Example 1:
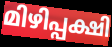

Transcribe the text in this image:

മിഴിപ്പക്ഷി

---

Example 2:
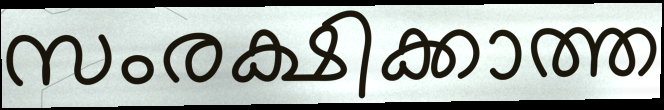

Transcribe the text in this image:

സംരക്ഷിക്കാത്ത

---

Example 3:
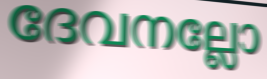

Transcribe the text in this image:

ദേവനല്ലോ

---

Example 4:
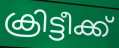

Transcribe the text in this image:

ക്രിട്ടീക്ക്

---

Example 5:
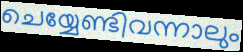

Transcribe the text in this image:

ചെയ്യേണ്ടിവന്നാലും